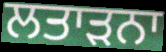
ਲਤਾੜਨਾ